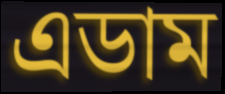
এডাম